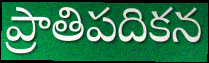
ప్రాతిపదికన